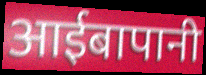
आईबापानी